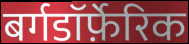
बर्गडॉर्फ़ेरिक